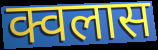
क्वलास